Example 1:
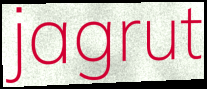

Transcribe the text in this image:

jagrut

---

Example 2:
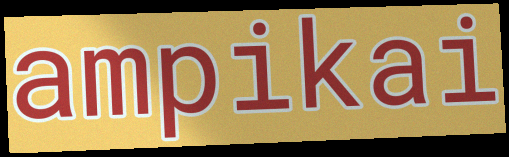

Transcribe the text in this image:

ampikai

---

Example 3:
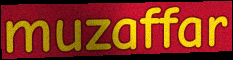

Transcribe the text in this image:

muzaffar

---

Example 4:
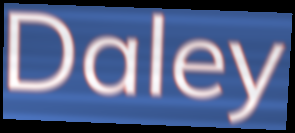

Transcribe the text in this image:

Daley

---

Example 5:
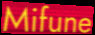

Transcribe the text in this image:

Mifune